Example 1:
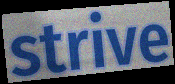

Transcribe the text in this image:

strive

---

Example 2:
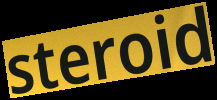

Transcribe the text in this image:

steroid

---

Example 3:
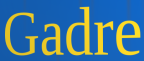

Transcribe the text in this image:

Gadre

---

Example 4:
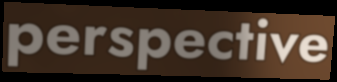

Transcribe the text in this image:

perspective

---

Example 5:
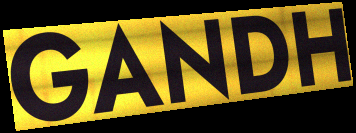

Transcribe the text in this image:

GANDH